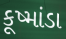
કૂષ્માંડા